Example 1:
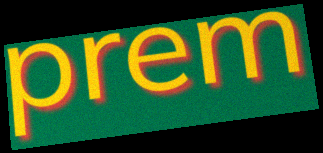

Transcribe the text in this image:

prem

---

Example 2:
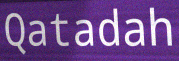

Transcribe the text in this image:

Qatadah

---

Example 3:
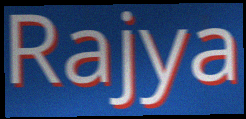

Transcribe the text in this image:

Rajya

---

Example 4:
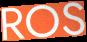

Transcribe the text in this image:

ROS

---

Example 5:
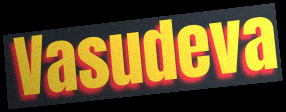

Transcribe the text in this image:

Vasudeva